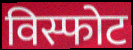
विस्फोट